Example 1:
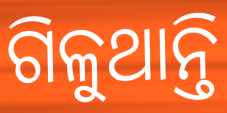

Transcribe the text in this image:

ଗିଳୁଥାନ୍ତି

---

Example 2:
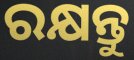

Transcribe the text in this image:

ରକ୍ଷନ୍ତୁ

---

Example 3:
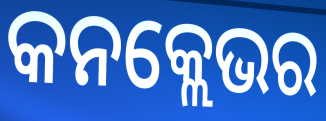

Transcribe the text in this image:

କନକ୍ଲେଭର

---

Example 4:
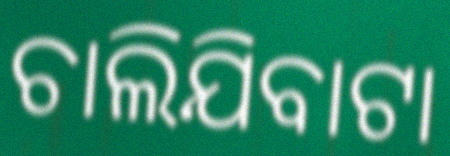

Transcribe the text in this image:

ଚାଲିଯିବାଟା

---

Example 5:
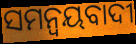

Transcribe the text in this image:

ସମନ୍ୱୟବାଦୀ